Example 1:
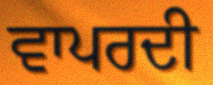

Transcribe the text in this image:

ਵਾਪਰਦੀ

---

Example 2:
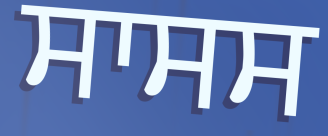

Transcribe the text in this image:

ਸਾਸਸ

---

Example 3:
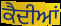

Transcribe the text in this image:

ਕੈਦੀਆਂ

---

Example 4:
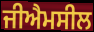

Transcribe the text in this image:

ਜੀਐਮਸੀਲ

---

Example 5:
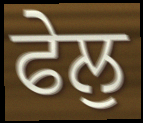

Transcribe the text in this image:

ਫੇਲੁ